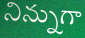
నిన్నుగా